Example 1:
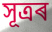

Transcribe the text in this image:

সূত্ৰৰ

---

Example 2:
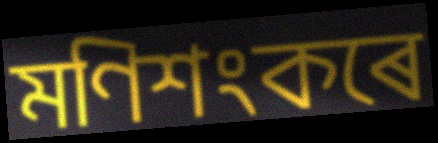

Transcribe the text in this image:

মণিশংকৰে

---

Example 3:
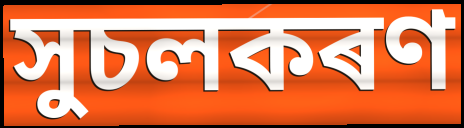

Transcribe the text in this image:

সুচলকৰণ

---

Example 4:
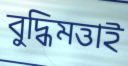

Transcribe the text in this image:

বুদ্ধিমত্তাই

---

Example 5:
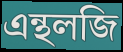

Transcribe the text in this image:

এন্থলজি